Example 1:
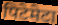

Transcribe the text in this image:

पिटेमेटा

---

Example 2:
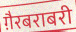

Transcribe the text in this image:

ग़ैरबराबरी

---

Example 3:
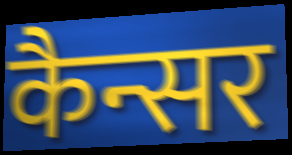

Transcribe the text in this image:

कैन्सर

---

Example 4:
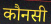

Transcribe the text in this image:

कौनसी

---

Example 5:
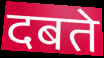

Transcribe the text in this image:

दबते